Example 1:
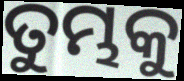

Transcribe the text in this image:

ତୁମ୍ଭକୁ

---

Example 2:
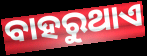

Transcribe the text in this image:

ବାହରୁଥାଏ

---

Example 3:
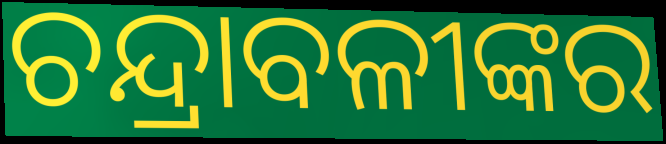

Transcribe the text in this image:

ଚନ୍ଦ୍ରାବଳୀଙ୍କର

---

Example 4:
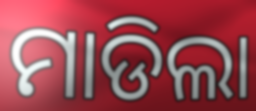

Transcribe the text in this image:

ମାଡିଲା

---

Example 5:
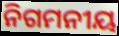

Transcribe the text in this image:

ନିଗମନୀୟ